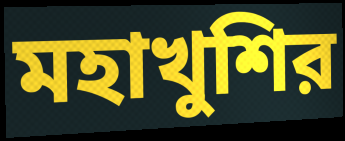
মহাখুশির